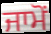
ਜਾਮੋਂ